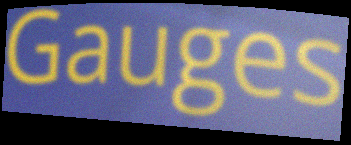
Gauges